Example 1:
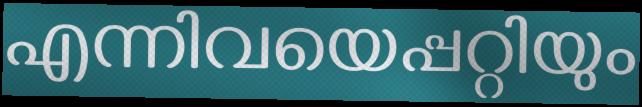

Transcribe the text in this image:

എന്നിവയെപ്പറ്റിയും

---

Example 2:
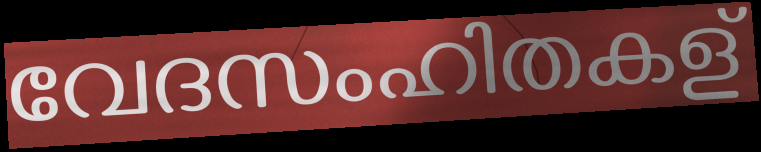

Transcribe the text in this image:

വേദസംഹിതകള്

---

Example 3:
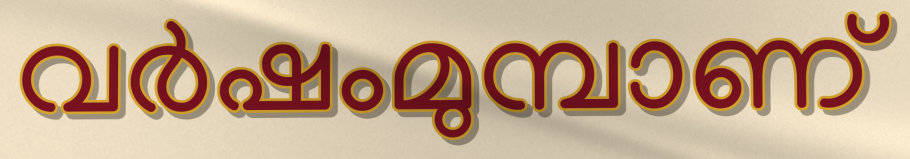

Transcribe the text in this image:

വർഷംമുമ്പാണ്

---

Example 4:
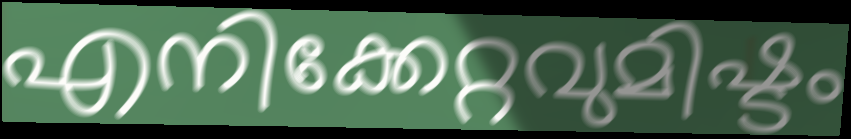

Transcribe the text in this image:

എനിക്കേറ്റവുമിഷ്ടം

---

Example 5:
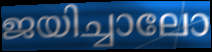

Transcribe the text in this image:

ജയിച്ചാലോ